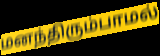
மனந்திரும்பாமல்